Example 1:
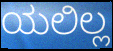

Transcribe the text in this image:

ಯಲಿಲ್ಲ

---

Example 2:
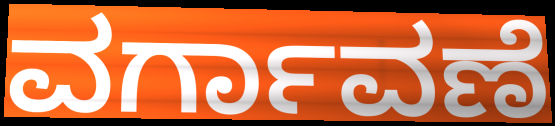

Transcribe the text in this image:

ವರ್ಗಾವಣೆ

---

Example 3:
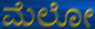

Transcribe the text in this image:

ಮೆಲೋ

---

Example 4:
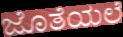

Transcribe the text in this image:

ಜೊತೆಯಲೆ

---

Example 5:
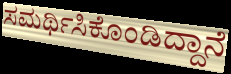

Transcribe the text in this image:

ಸಮರ್ಥಿಸಿಕೊಂಡಿದ್ದಾನೆ